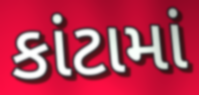
કાંટામાં